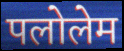
पलोलेम